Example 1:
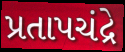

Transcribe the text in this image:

પ્રતાપચંદ્રે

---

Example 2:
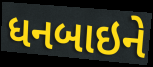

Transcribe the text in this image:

ધનબાઇને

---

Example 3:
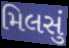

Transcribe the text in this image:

મિલસું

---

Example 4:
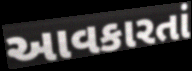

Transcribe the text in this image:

આવકારતાં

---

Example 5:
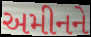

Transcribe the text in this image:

અમીનને